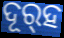
ଦୂର୍‌ହ